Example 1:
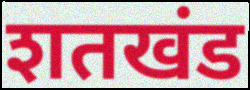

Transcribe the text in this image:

शतखंड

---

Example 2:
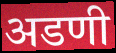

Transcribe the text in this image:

अडणी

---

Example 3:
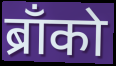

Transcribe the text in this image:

ब्राँको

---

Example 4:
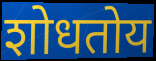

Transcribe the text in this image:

शोधतोय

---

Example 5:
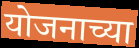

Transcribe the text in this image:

योजनाच्या